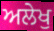
ਅਲੇਖੁ